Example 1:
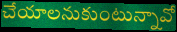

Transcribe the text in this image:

చేయాలనుకుంటున్నావో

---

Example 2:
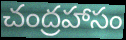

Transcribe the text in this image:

చంద్రహాసం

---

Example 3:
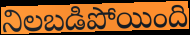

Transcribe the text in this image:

నిలబడిపోయింది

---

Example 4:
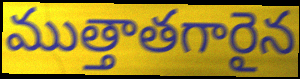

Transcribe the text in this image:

ముత్తాతగారైన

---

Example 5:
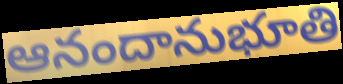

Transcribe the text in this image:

ఆనందానుభూతి